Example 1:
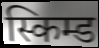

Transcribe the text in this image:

स्किम्ड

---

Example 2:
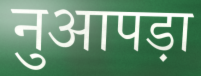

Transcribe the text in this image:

नुआपड़ा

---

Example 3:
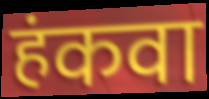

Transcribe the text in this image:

हंकवा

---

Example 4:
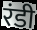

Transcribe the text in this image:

रंडी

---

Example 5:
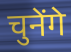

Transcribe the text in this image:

चुनेंगे